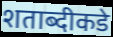
शताब्दीकडे